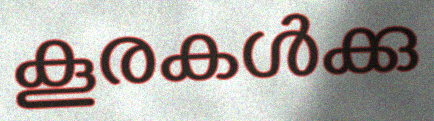
കൂരകൾക്കു